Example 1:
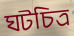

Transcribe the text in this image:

ঘটচিত্র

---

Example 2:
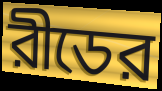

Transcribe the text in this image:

রীডের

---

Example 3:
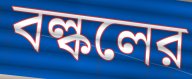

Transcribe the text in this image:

বল্কলের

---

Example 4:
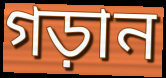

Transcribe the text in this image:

গড়ান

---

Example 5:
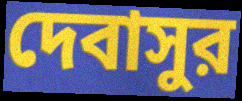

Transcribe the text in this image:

দেবাসুর